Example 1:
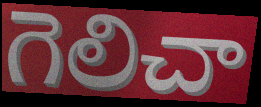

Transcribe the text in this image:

గెలిచా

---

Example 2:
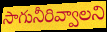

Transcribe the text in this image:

సాగునీరివ్వాలని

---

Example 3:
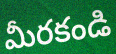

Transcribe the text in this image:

మీరకండి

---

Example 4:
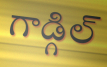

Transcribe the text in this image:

గాడ్గిల్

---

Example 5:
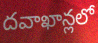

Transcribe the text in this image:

దవాఖాన్లలో